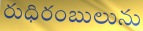
రుధిరంబులును